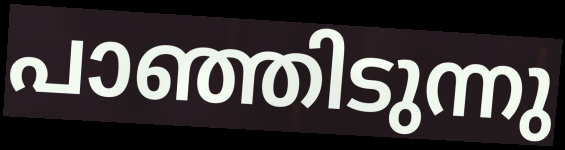
പാഞ്ഞിടുന്നു